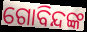
ଗୋବିନ୍ଦଙ୍କ